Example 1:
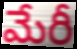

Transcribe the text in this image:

మేరీ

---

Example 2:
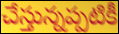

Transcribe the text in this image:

చేస్తున్నప్పటికీ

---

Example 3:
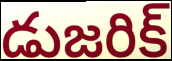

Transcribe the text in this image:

డుజరిక్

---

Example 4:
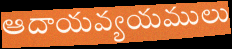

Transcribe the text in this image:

ఆదాయవ్యయములు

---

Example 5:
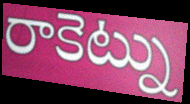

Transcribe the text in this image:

రాకెట్ను